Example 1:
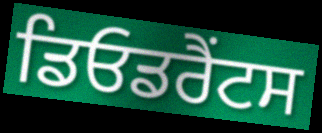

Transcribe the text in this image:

ਡਿਓਡਰੈਂਟਸ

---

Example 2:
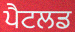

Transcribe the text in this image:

ਪੈਟਲਡ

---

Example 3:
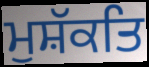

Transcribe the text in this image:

ਮੁਸ਼ੱਕਤਿ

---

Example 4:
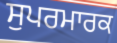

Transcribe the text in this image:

ਸੁਪਰਮਾਰਕ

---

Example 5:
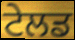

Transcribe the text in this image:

ਟੇਲਡ